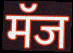
मॅज